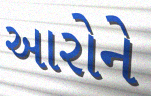
આરોને